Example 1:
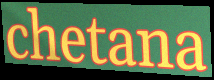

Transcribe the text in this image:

chetana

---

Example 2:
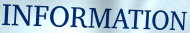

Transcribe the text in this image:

INFORMATION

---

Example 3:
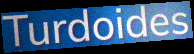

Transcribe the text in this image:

Turdoides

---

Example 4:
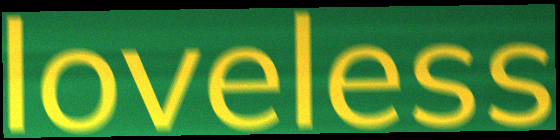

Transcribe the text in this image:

loveless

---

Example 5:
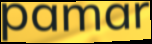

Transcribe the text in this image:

pamar